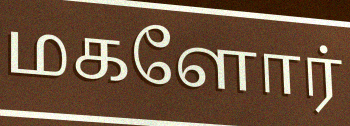
மகளோர்